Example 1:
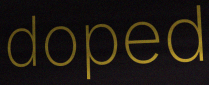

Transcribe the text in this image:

doped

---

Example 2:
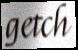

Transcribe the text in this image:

getch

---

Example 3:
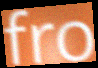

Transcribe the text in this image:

fro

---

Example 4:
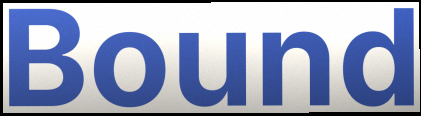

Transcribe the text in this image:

Bound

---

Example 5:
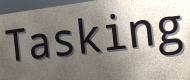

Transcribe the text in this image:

Tasking